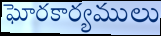
ఘోరకార్యములు